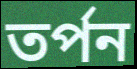
তর্পন